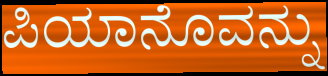
ಪಿಯಾನೊವನ್ನು